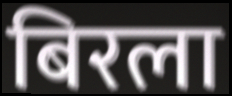
बिरला